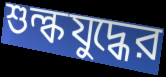
শুল্কযুদ্ধের